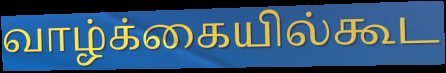
வாழ்க்கையில்கூட